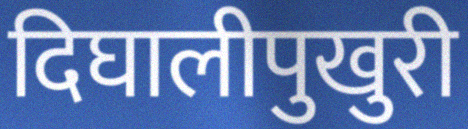
दिघालीपुखुरी